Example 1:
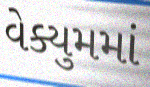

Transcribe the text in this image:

વેક્યુમમાં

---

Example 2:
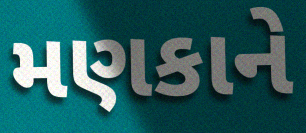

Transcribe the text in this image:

મણકાને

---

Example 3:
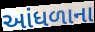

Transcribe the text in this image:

આંધળાના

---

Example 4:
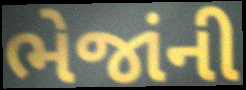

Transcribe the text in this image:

ભેજાંની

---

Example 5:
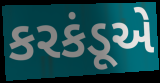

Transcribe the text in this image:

કરકંડૂએ